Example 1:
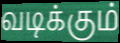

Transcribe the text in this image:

வடிக்கும்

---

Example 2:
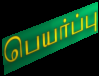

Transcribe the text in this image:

பெயர்ப்பு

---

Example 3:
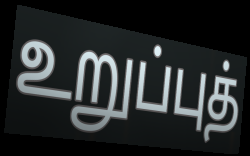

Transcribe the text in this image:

உறுப்புத்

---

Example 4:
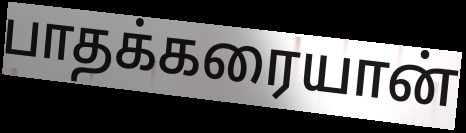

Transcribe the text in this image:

பாதக்கரையான்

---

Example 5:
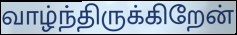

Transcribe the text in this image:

வாழ்ந்திருக்கிறேன்